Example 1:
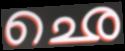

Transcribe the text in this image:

ഛെ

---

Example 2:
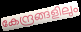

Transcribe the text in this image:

കേന്ദ്രങ്ങളിലും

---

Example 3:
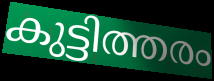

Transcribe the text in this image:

കുട്ടിത്തരം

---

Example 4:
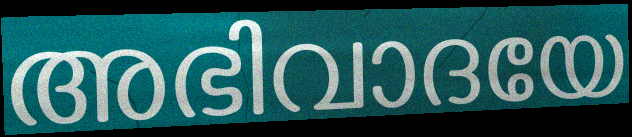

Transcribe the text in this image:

അഭിവാദയേ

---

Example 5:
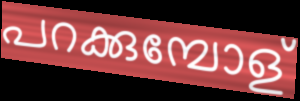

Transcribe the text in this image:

പറക്കുമ്പോള്